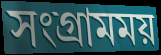
সংগ্রামময়